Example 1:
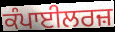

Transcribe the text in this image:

ਕੰਪਾਈਲਰਜ਼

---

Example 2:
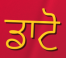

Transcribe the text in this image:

ਡਾਟੋ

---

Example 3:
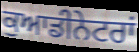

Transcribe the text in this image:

ਕੁਆਡੀਨੇਟਰਾਂ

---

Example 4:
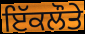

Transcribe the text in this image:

ਇੱਕਲੌਤੇ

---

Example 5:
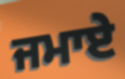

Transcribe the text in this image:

ਜਮਾਏ